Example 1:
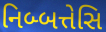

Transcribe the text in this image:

નિબ્બત્તેસિ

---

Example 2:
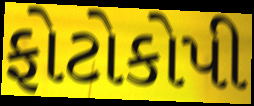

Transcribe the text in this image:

ફોટોકોપી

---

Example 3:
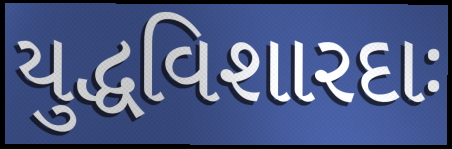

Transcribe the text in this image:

યુદ્ધવિશારદાઃ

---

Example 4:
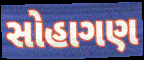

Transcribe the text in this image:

સોહાગણ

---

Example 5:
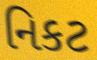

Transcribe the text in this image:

નિકટ